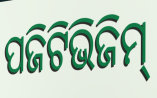
ପଜିଟିଭିଜିମ୍